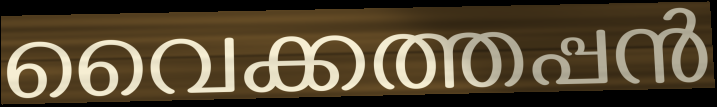
വൈക്കത്തപ്പൻ